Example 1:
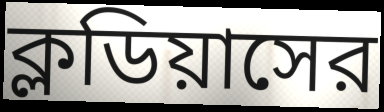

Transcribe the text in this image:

ক্লডিয়াসের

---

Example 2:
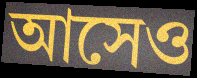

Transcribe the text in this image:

আসেও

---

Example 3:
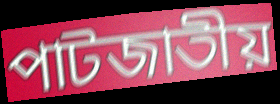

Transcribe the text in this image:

পাটজাতীয়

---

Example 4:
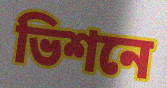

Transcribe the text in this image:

ভিশনে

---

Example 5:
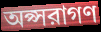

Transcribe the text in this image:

অপ্সরাগণ